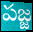
పజ్జ